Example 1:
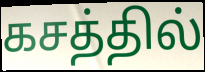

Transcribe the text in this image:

கசத்தில்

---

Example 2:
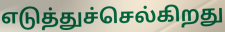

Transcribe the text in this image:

எடுத்துச்செல்கிறது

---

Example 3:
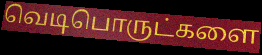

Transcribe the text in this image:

வெடிபொருட்களை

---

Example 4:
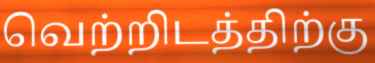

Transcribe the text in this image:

வெற்றிடத்திற்கு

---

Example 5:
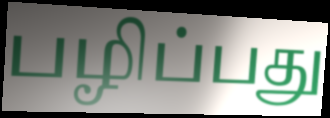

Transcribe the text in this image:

பழிப்பது